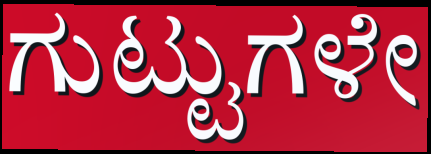
ಗುಟ್ಟುಗಳೇ